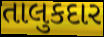
તાલુકદાર